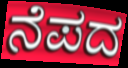
ನೆಪದ